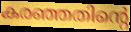
കരഞ്ഞതിന്റെ